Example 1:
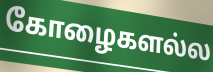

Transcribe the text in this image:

கோழைகளல்ல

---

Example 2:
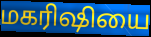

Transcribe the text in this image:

மகரிஷியை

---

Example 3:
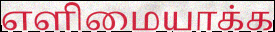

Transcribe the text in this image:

எளிமையாக்க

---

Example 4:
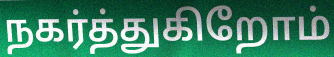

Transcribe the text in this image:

நகர்த்துகிறோம்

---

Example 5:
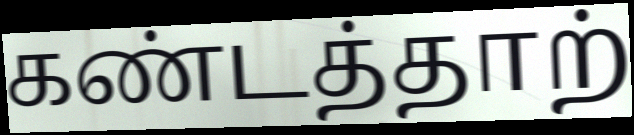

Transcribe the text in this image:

கண்டத்தாற்